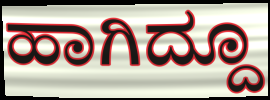
ಹಾಗಿದ್ದೂ